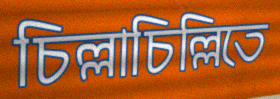
চিল্লাচিল্লিতে